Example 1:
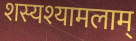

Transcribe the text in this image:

शस्यश्यामलाम्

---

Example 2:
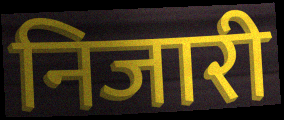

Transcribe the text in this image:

निजारी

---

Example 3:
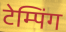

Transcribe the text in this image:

टेम्पिंग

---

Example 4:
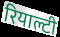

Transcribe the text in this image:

रियाल्टी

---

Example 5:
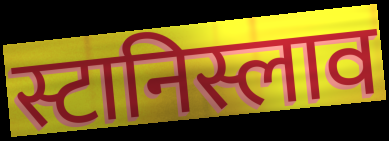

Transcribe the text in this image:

स्टानिस्लाव